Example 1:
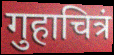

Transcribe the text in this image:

गुहाचित्रं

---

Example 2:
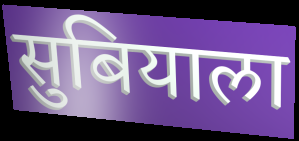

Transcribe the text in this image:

सुबियाला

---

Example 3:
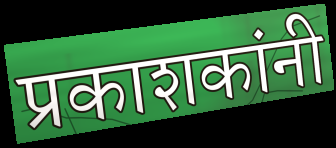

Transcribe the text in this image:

प्रकाशकांनी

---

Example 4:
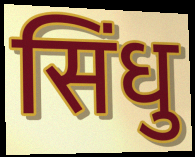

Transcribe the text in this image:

सिंधु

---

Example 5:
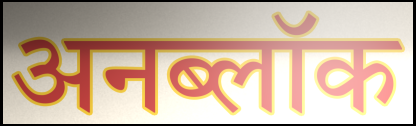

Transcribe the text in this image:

अनब्लॉक